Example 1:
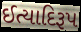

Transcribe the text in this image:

ઈત્યાદિરૂપ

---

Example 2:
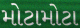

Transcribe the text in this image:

મોટામોટા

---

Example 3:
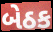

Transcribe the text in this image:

બેઠક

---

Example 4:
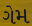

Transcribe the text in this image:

ગેમ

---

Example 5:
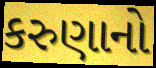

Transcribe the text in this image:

કરુણાનો